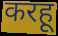
करहू